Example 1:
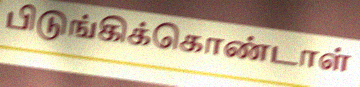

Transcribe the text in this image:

பிடுங்கிக்கொண்டாள்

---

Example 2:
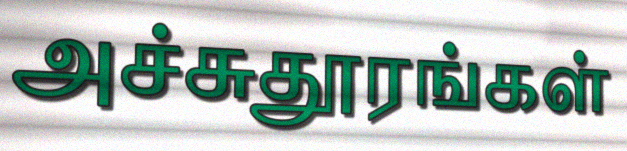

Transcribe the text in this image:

அச்சுதூரங்கள்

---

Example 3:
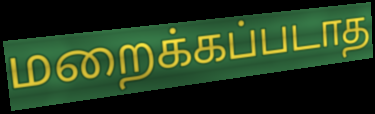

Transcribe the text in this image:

மறைக்கப்படாத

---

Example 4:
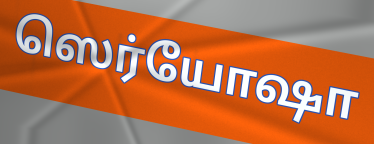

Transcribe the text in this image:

ஸெர்யோஷா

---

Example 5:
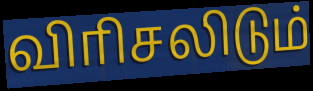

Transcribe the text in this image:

விரிசலிடும்